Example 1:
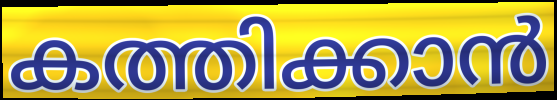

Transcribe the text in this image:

കത്തിക്കാൻ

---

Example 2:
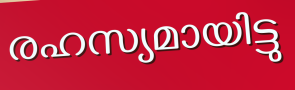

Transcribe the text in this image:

രഹസ്യമായിട്ടു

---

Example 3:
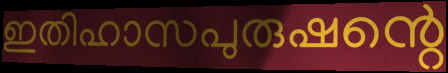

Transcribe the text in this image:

ഇതിഹാസപുരുഷന്റെ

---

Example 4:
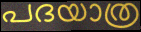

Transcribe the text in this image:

പദയാത്ര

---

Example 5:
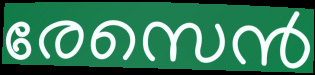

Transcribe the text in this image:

രേസെൻ